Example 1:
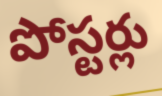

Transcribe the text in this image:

పోస్టర్లు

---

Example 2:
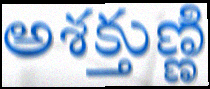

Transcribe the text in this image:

అశక్తుణ్ణి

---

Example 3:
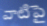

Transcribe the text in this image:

వాటిపై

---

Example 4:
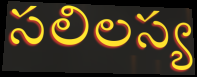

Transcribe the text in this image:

సలిలస్య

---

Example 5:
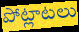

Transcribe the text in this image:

పోట్లాటలు